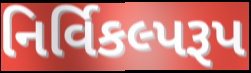
નિર્વિકલ્પરૂપ